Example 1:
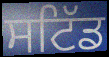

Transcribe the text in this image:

ਸਟਿੱਡ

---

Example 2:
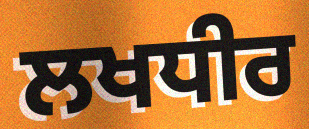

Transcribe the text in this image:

ਲਖਧੀਰ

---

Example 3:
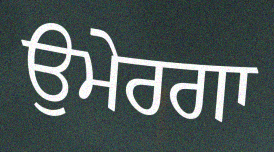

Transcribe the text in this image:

ਉਮੇਰਗਾ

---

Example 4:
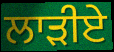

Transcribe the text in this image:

ਲਾੜੀਏ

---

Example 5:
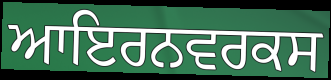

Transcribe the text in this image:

ਆਇਰਨਵਰਕਸ